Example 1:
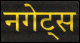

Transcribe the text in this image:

नगेट्स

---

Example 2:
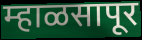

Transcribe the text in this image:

म्हाळसापूर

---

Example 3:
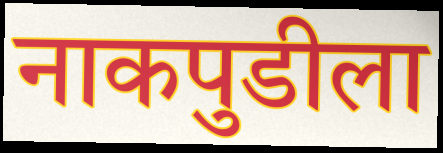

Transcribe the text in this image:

नाकपुडीला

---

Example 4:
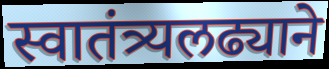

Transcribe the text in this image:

स्वातंत्र्यलढ्याने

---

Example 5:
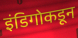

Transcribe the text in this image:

इंडिगोकडून